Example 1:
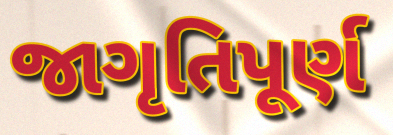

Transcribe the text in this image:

જાગૃતિપૂર્ણ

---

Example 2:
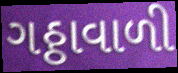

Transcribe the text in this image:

ગઠ્ઠાવાળી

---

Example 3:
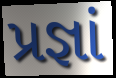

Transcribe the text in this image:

પ્રજ્ઞાં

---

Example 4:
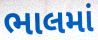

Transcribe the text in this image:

ભાલમાં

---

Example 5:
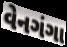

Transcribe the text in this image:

વેનગંગા